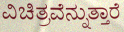
ವಿಚಿತ್ರವೆನ್ನುತ್ತಾರೆ